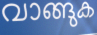
വാങ്ങുക